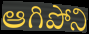
ఆగిపోని